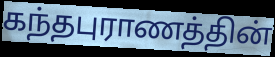
கந்தபுராணத்தின்